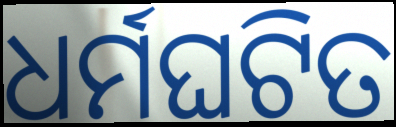
ଧର୍ମଘଟିତ